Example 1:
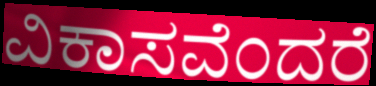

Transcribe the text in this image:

ವಿಕಾಸವೆಂದರೆ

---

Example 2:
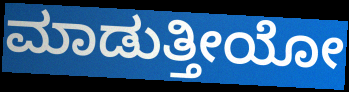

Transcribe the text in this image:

ಮಾಡುತ್ತೀಯೋ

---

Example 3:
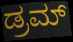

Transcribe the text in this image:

ಡ್ರಮ್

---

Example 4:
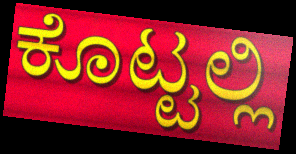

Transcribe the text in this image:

ಕೊಟ್ಟಲ್ಲಿ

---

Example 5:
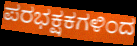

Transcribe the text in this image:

ಪರಭಕ್ಷಕಗಳಿಂದ